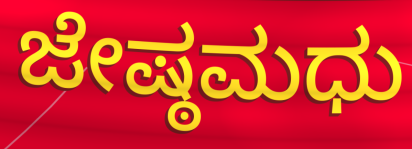
ಜೇಷ್ಠಮಧು